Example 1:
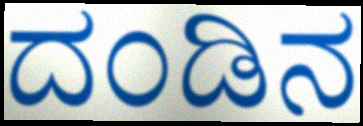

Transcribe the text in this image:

ದಂಡಿನ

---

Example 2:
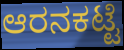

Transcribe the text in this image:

ಆರನಕಟ್ಟೆ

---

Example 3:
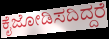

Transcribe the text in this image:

ಕೈಜೋಡಿಸದಿದ್ದರೆ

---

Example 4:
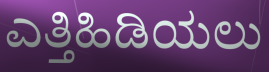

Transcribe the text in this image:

ಎತ್ತಿಹಿಡಿಯಲು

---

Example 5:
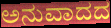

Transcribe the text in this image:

ಅನುವಾದದ